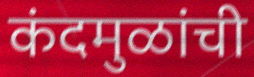
कंदमुळांची